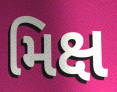
મિક્ષ